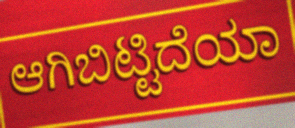
ಆಗಿಬಿಟ್ಟಿದೆಯಾ